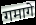
गमागे